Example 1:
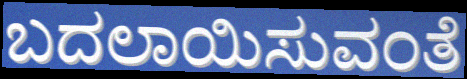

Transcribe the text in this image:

ಬದಲಾಯಿಸುವಂತೆ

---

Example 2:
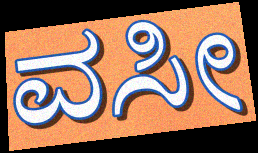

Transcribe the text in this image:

ವಸೀ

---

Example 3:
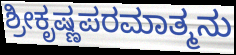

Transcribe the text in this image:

ಶ್ರೀಕೃಷ್ಣಪರಮಾತ್ಮನು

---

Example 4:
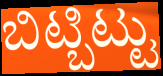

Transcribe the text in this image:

ಬಿಟ್ಬಿಟ್ಟು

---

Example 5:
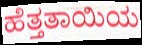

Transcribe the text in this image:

ಹೆತ್ತತಾಯಿಯ